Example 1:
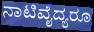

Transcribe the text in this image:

ನಾಟಿವೈದ್ಯರೂ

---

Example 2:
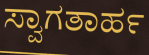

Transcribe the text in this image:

ಸ್ವಾಗತಾರ್ಹ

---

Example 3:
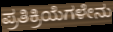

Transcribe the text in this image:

ಪ್ರತಿಕ್ರಿಯೆಗಳೇನು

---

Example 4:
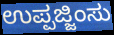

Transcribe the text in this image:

ಉಪ್ಪಜ್ಜಿಂಸು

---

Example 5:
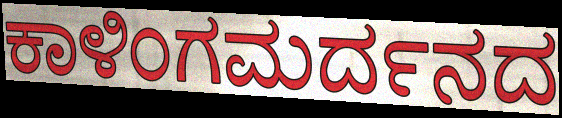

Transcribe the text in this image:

ಕಾಳಿಂಗಮರ್ದನದ